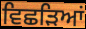
ਵਿਛੜਿਆਂ